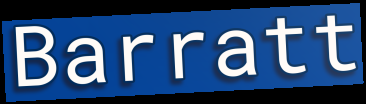
Barratt